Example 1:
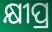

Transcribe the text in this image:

କ୍ଷୀପ୍ର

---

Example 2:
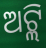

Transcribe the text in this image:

ଅଟ୍ଲି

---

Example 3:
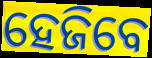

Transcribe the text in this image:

ହେଜିବେ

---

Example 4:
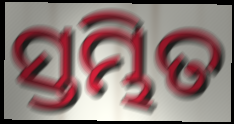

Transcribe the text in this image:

ସ୍ତମ୍ଭିତ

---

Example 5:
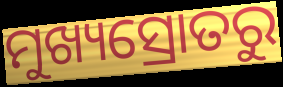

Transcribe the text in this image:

ମୁଖ୍ୟସ୍ରୋତରୁ